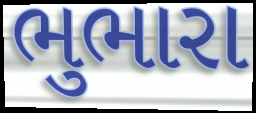
ભુભારા